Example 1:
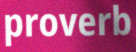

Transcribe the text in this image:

proverb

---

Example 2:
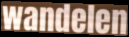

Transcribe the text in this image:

wandelen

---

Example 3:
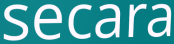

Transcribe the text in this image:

secara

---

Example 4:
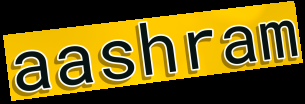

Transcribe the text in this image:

aashram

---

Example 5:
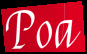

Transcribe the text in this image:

Poa